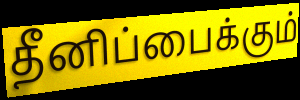
தீனிப்பைக்கும்